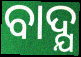
ବାଦ୍ଯ